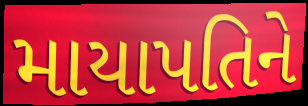
માયાપતિને